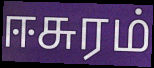
ஈசுரம்